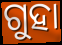
ଗୁହା